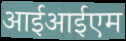
आईआईएम